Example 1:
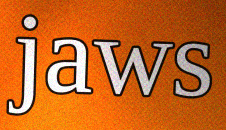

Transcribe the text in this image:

jaws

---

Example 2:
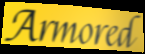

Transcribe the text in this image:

Armored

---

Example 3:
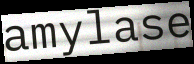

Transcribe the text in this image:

amylase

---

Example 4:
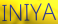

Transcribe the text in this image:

INIYA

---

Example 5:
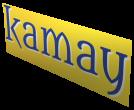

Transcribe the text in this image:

kamay